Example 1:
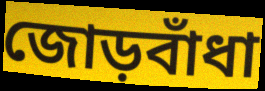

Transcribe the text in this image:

জোড়বাঁধা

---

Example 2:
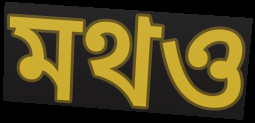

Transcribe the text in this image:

মথও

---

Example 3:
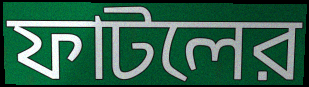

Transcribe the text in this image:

ফাটলের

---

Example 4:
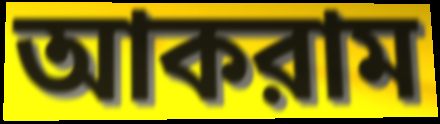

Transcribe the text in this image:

আকরাম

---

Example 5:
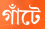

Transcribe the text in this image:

গাঁটে